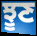
ਝੂਣ